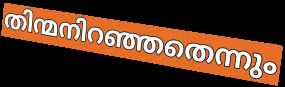
തിന്മനിറഞ്ഞതെന്നും